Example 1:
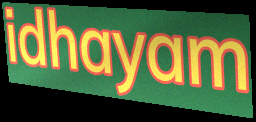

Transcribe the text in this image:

idhayam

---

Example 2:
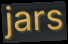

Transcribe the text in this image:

jars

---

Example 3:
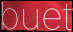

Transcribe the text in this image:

buet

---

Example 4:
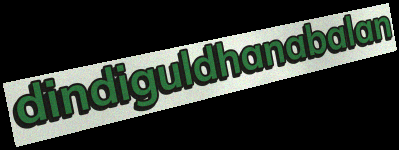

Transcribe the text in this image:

dindiguldhanabalan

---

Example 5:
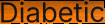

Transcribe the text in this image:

Diabetic